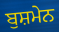
ਬੁਸ਼ਮੇਨ